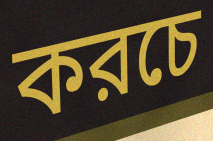
করচে